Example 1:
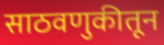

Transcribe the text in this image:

साठवणुकीतून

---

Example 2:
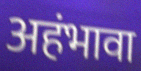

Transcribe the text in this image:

अहंभावा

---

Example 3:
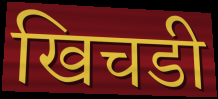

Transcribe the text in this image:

खिचडी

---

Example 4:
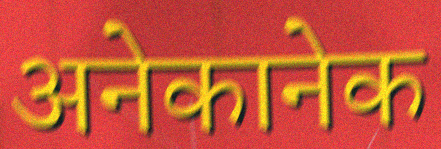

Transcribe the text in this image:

अनेकानेक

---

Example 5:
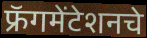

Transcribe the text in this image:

फ्रॅगमेंटेशनचे